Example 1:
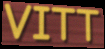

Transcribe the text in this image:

VITT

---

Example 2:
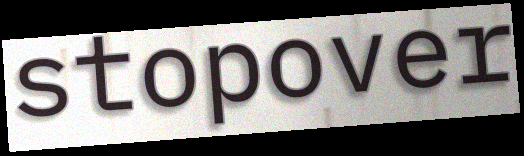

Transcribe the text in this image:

stopover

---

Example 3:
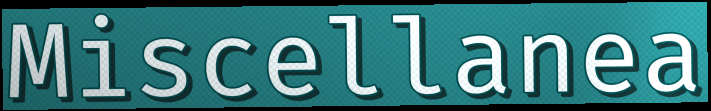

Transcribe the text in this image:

Miscellanea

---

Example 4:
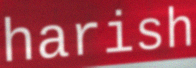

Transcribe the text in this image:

harish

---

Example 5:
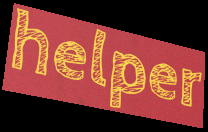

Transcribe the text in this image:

helper